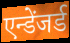
एन्डेंजर्ड